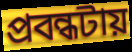
প্রবন্ধটায়